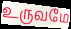
உருவமே